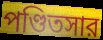
পণ্ডিতসার